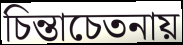
চিন্তাচেতনায়